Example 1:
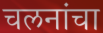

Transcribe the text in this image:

चलनांचा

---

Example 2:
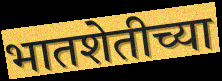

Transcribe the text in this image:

भातशेतीच्या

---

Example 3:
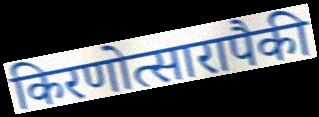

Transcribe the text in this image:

किरणोत्सारापैकी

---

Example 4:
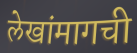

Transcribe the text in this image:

लेखांमागची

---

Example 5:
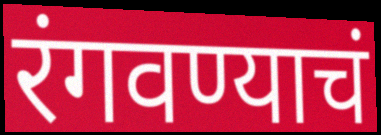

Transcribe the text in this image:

रंगवण्याचं